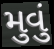
મુવું